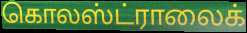
கொலஸ்ட்ராலைக்